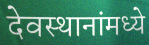
देवस्थानांमध्ये